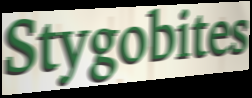
Stygobites